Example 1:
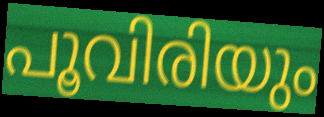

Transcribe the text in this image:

പൂവിരിയും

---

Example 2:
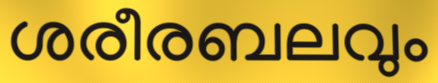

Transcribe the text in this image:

ശരീരബലവും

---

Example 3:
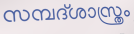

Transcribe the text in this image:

സമ്പദ്ശാസ്ത്രം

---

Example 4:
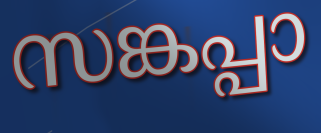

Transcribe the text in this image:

സങ്കപ്പാ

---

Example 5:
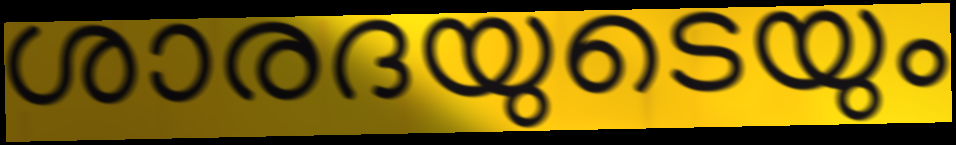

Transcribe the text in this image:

ശാരദയുടെയും